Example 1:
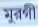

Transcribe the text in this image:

মুরগী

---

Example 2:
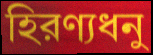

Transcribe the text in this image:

হিরণ্যধনু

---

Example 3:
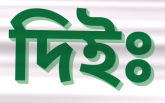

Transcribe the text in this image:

দিইঃ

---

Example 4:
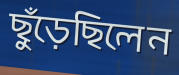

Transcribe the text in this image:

ছুঁড়েছিলেন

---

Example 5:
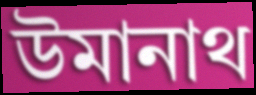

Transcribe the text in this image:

উমানাথ